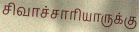
சிவாச்சாரியாருக்கு